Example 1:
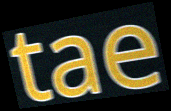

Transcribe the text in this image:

tae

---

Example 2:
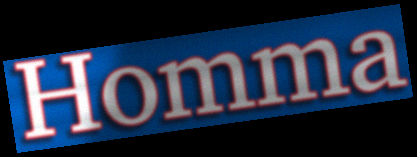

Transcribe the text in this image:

Homma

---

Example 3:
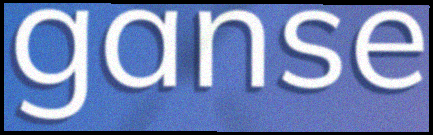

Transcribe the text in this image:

ganse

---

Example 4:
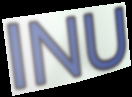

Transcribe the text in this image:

INU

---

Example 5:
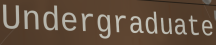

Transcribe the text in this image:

Undergraduate